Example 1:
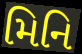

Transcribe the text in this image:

મિનિ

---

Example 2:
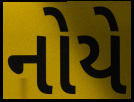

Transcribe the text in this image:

નોયે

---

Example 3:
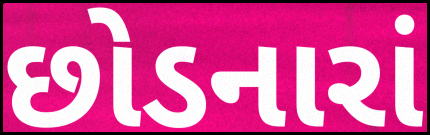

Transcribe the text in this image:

છોડનારાં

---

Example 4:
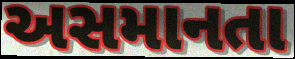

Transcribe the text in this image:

અસમાનતા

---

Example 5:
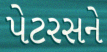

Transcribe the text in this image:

પેટરસને